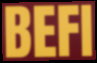
BEFI